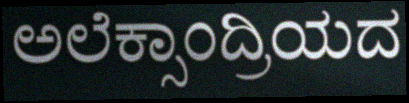
ಅಲೆಕ್ಸಾಂದ್ರಿಯದ